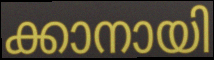
ക്കാനായി